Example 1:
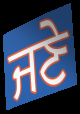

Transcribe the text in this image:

ਜਣੇ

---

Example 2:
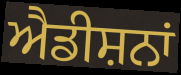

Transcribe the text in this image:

ਐਡੀਸ਼ਨਾਂ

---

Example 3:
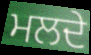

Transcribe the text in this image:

ਮਲਦੇ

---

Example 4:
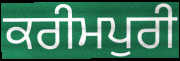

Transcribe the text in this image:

ਕਰੀਮਪੁਰੀ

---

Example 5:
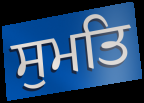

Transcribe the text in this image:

ਸੁਮਤਿ